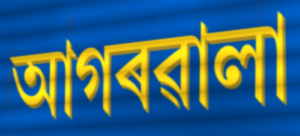
আগৰৱালা